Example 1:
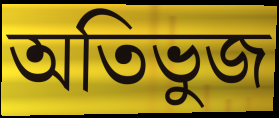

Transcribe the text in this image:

অতিভুজ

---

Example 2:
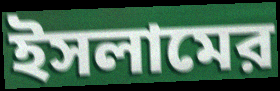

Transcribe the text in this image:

ইসলামের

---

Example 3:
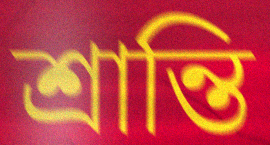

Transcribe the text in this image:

শ্রান্তি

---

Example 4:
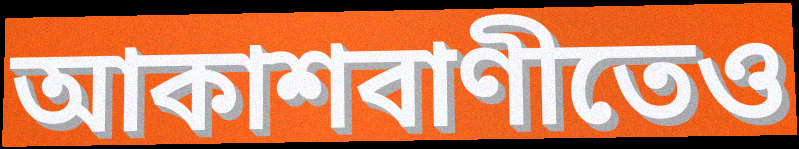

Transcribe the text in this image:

আকাশবাণীতেও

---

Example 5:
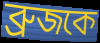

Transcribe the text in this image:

ব্রুজকে